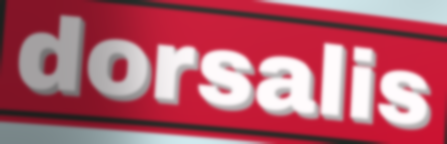
dorsalis